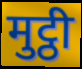
मुट्ठी